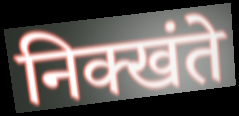
निक्खंते